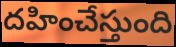
దహించేస్తుంది